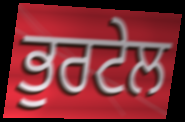
ਭੁਰਟੇਲ